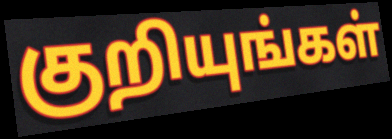
குறியுங்கள்